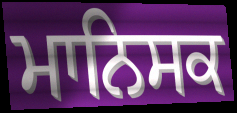
ਮਾਨਿਸਕ